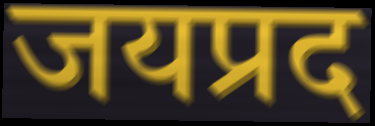
जयप्रद